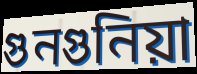
গুনগুনিয়া